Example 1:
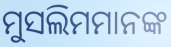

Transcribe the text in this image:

ମୁସଲିମମାନଙ୍କ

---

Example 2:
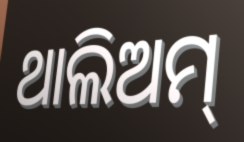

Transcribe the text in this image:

ଥାଲିଅମ୍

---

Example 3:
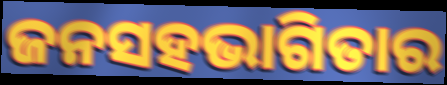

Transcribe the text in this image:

ଜନସହଭାଗିତାର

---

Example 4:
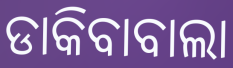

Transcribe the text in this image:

ଡାକିବାବାଲା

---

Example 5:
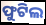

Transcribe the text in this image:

ଫୁଟିଲ